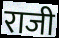
राजी